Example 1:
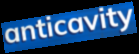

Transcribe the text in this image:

anticavity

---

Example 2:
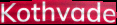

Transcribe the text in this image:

Kothvade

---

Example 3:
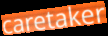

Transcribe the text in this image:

caretaker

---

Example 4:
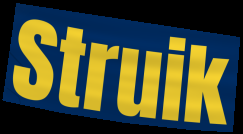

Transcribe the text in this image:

Struik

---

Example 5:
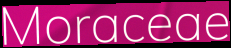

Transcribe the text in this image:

Moraceae